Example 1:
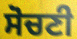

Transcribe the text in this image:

ਸੋਚਣੀ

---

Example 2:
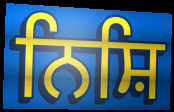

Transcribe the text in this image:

ਨਿਸ਼ਿ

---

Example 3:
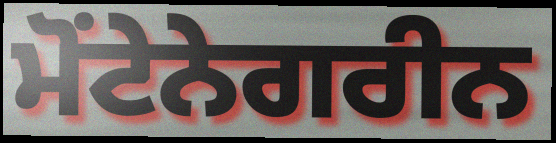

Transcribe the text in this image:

ਮੋਂਟੇਨੇਗਰੀਨ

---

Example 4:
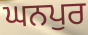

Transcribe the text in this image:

ਘਨਪੁਰ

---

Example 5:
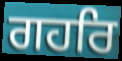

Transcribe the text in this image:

ਗਹਰਿ